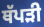
ਥੱਪੜੀ